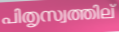
പിതൃസ്വത്തില്